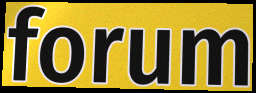
forum